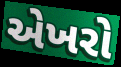
એખરો